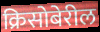
क्रिसोबेरील